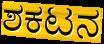
ಶಕಟನ